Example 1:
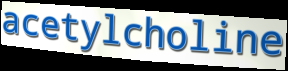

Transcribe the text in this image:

acetylcholine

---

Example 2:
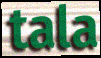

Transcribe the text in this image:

tala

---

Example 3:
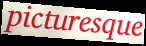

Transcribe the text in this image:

picturesque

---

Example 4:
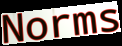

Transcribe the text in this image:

Norms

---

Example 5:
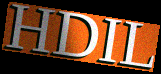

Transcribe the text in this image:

HDIL